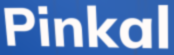
Pinkal